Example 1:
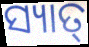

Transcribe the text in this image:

ସ୍ୟାତ୍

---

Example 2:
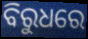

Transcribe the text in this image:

ବିରୁଧରେ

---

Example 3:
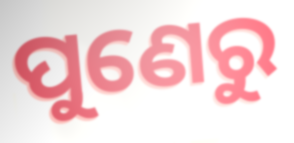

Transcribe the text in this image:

ପୁଣେରୁ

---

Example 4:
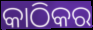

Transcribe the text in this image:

କାଠିକର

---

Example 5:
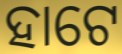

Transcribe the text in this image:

ହାଟେ